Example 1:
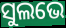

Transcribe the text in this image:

ସୁଲଭେ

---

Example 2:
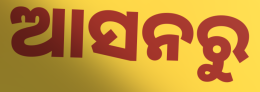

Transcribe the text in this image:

ଆସନରୁ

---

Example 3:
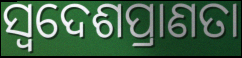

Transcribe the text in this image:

ସ୍ଵଦେଶପ୍ରାଣତା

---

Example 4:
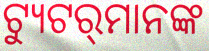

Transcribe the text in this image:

ଟ୍ୟୁଟର୍‍ମାନଙ୍କ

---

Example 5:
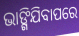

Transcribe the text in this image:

ଭାଙ୍ଗିଯିବାପରେ